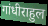
गांधीराहुल